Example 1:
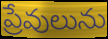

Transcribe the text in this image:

ప్రేవులును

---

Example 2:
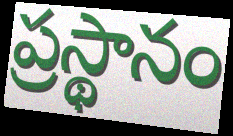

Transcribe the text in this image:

ప్రస్థానం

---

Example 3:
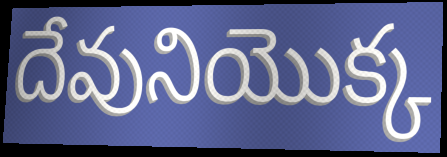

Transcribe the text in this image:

దేవునియొక్క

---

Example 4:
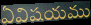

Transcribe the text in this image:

ఏవిషయము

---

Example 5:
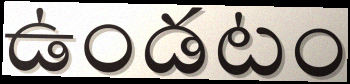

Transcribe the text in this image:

ఉండటం